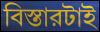
বিস্তারটাই